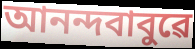
আনন্দবাবুৱে